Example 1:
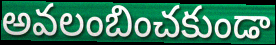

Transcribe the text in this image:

అవలంబించకుండా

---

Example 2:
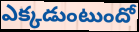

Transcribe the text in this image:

ఎక్కడుంటుందో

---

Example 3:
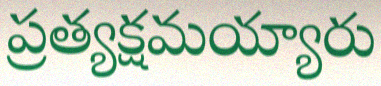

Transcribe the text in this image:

ప్రత్యక్షమయ్యారు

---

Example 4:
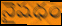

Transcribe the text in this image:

నైషధం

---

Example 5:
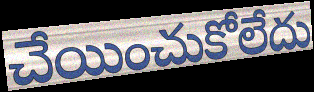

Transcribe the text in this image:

చేయించుకోలేదు